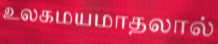
உலகமயமாதலால்